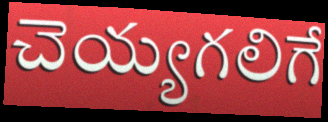
చెయ్యగలిగే